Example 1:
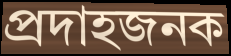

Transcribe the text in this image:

প্রদাহজনক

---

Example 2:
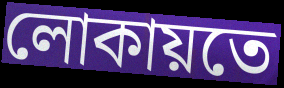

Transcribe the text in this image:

লোকায়তে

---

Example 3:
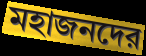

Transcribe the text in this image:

মহাজনদের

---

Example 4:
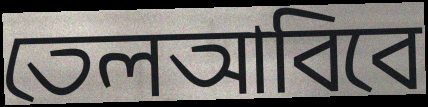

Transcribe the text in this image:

তেলআবিবে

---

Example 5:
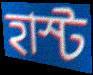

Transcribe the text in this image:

হাস্ট